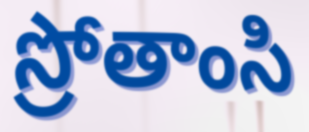
స్రోతాంసి